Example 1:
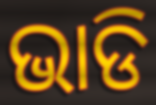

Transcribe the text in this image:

ଭାଡି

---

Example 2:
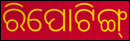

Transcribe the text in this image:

ରିପୋଟିଙ୍ଗ୍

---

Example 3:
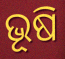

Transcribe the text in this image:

ଭୂଷି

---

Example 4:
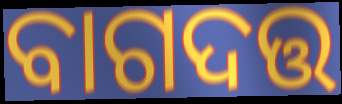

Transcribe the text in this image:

ବାଗଦତ୍ତ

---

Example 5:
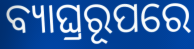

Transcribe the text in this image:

ବ୍ୟାଘ୍ରରୂପରେ